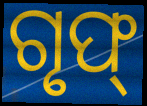
ଗୃଫ୍